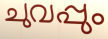
ചുവപ്പും